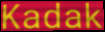
Kadak